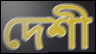
দেশী